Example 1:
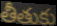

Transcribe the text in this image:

తీతుకు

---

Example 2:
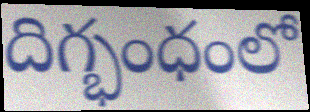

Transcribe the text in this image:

దిగ్భంధంలో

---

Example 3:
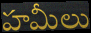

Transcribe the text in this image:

హమీలు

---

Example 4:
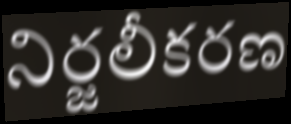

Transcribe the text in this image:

నిర్జలీకరణ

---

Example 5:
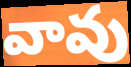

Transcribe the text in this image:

వావు